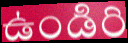
ఉండిరి